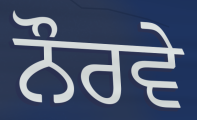
ਨੌਰਵੇ